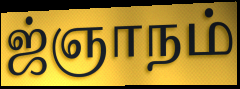
ஜ்ஞாநம்